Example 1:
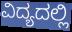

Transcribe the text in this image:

ವಿದ್ಯದಲ್ಲಿ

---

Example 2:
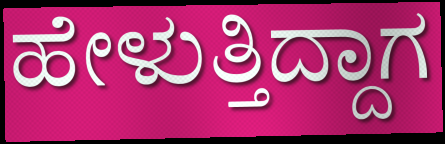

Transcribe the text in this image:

ಹೇಳುತ್ತಿದ್ದಾಗ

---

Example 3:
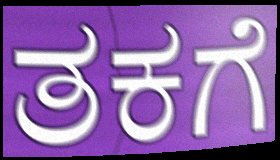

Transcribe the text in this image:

ತಕಗೆ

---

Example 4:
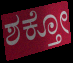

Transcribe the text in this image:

ಶಕ್ತೋ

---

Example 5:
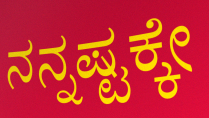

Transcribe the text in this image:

ನನ್ನಷ್ಟಕ್ಕೇ